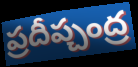
ప్రదీప్చంద్ర